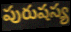
పురుషస్య